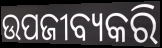
ଉପଜୀବ୍ୟକରି